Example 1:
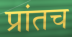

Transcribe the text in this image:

प्रांतच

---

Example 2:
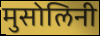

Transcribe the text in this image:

मुसोलिनी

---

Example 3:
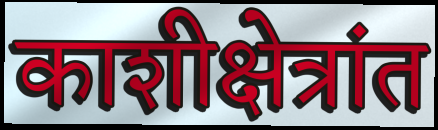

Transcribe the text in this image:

काशीक्षेत्रांत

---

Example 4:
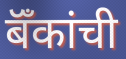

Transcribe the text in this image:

बॅँकांची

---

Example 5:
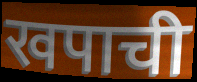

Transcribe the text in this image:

खपाची